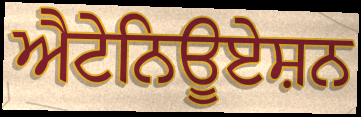
ਐਟੇਨਿਊਏਸ਼ਨ